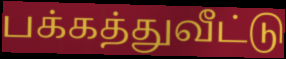
பக்கத்துவீட்டு